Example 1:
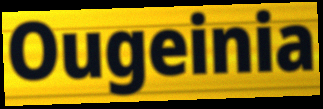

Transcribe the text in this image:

Ougeinia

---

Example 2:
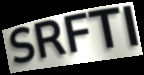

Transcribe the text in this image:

SRFTI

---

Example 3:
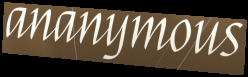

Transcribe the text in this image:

ananymous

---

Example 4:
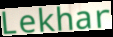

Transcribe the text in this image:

Lekhar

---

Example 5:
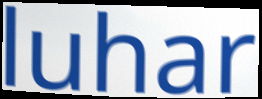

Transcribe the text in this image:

luhar